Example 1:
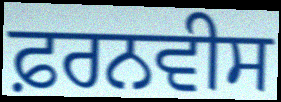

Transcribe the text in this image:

ਫ਼ਰਨਵੀਸ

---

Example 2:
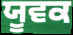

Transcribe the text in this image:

ਯੂਵਕ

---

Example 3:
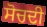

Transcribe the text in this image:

ਸੋਚਦੀ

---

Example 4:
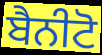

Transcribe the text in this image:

ਬੈਨੀਟੋ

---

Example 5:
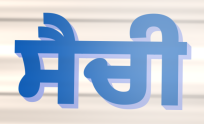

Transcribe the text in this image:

ਸੈਚੀ